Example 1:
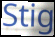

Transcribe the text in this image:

Stig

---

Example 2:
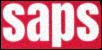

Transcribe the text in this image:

saps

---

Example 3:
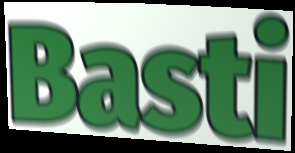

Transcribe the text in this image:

Basti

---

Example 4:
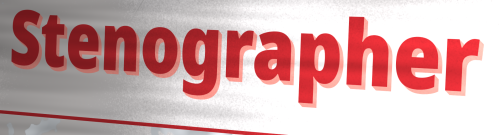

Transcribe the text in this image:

Stenographer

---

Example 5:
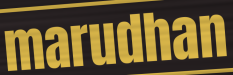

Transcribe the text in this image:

marudhan